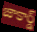
జాకార్డ్